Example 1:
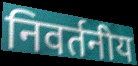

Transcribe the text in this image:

निवर्तनीय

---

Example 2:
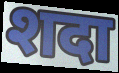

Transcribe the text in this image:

शदा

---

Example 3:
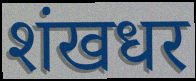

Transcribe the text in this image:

शंखधर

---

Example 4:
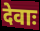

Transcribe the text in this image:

देवाः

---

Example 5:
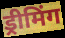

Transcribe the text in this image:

ड्रीमिंग